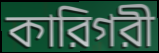
কারিগরী